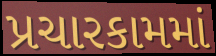
પ્રચારકામમાં